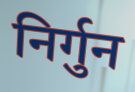
निर्गुन